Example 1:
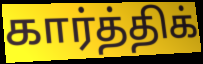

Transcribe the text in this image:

கார்த்திக்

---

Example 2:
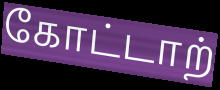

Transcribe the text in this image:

கோட்டாற்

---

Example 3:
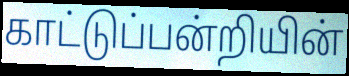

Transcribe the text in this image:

காட்டுப்பன்றியின்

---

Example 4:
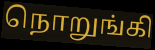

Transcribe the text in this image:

நொறுங்கி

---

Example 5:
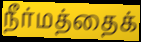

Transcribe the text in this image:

நீர்மத்தைக்